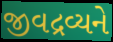
જીવદ્રવ્યને